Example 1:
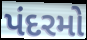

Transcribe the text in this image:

પંદરમો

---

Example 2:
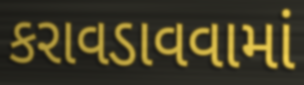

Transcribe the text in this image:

કરાવડાવવામાં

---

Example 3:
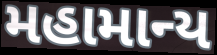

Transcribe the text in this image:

મહામાન્ય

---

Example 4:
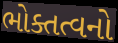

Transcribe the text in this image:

ભોક્તત્વનો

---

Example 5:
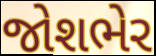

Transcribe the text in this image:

જોશભેર